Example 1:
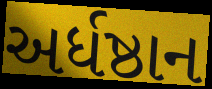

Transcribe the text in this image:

અર્ધષ્ઠાન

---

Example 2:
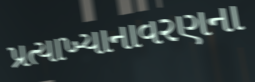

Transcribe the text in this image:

પ્રત્યાખ્યાનાવરણના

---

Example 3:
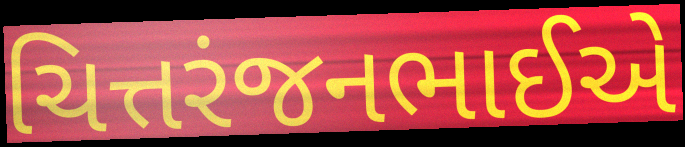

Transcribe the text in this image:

ચિત્તરંજનભાઈએ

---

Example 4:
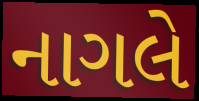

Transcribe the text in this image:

નાગલે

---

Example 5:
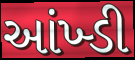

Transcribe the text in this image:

આંખ્ડી